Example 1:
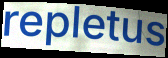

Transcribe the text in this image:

repletus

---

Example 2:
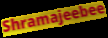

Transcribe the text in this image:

Shramajeebee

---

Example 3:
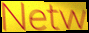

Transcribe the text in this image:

Netw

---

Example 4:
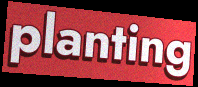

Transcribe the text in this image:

planting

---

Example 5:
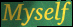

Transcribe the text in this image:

Myself